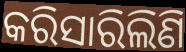
କରିସାରିଲିଣି